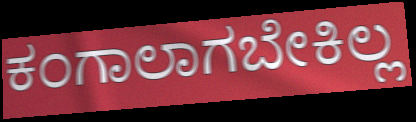
ಕಂಗಾಲಾಗಬೇಕಿಲ್ಲ